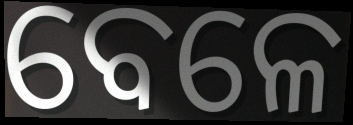
ବେଳେ